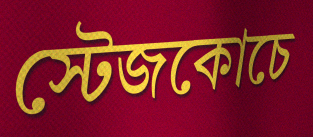
স্টেজকোচে